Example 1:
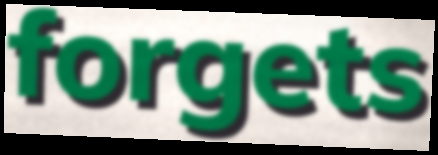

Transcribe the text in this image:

forgets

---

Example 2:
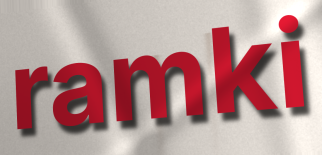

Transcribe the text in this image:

ramki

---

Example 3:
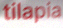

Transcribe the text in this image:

tilapia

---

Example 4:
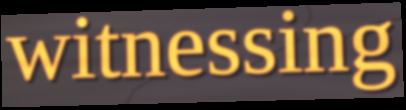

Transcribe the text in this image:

witnessing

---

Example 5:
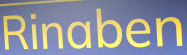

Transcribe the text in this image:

Rinaben